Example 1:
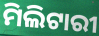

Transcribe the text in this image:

ମିଲିଟାରୀ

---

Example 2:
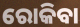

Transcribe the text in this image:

ରୋକିବା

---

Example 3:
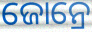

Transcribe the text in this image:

ଜୋନ୍ରେ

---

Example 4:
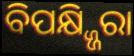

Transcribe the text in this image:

ବିପକ୍ଷ୍ଜ୍ଜିରା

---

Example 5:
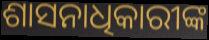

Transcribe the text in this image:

ଶାସନାଧିକାରୀଙ୍କ